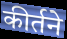
कीर्तने